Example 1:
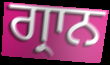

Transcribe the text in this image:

ਗ੍ਰਾਨ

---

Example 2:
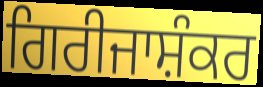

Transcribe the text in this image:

ਗਿਰੀਜਾਸ਼ੰਕਰ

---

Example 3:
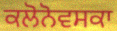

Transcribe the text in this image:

ਕਲੋਨੋਵਸਕਾ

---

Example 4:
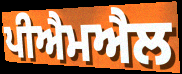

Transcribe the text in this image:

ਪੀਐਮਐਲ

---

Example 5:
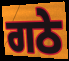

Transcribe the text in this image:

ਗਠੇ